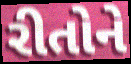
રીતોને